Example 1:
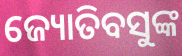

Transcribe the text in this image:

ଜ୍ୟୋତିବସୁଙ୍କ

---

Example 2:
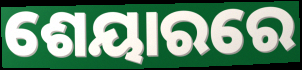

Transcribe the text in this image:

ଶେୟାରରେ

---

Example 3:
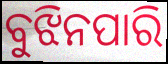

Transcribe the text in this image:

ବୁଝିନପାରି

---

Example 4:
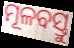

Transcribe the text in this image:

ମୂଳବସ୍ତୁ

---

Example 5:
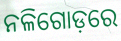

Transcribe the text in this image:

ନଳିଗୋଡ଼ରେ